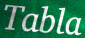
Tabla